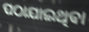
ପଠାଯାଇଥିଵା